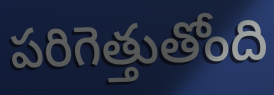
పరిగెత్తుతోంది